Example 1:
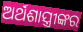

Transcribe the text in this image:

ଅର୍ଥଶାସ୍ତ୍ରୀଙ୍କର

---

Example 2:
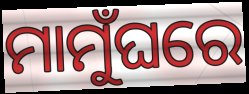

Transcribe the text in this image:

ମାମୁଁଘରେ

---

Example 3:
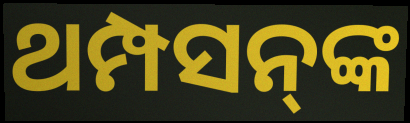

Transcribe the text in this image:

ଥମ୍ପସନ୍‌ଙ୍କ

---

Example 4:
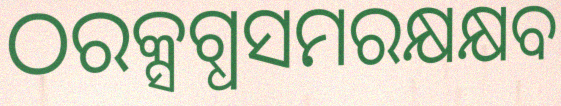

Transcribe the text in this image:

ଠରକ୍ସଗ୍ଧସମରକ୍ଷକ୍ଷବ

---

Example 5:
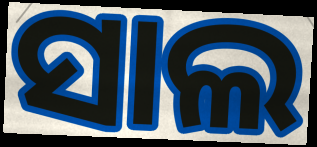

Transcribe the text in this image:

ସାଲ